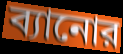
ব্যানোর